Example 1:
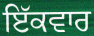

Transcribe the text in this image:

ਇੱਕਵਾਰ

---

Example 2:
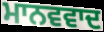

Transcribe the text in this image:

ਮਾਨਵਵਾਦ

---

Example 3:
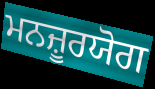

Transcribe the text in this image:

ਮਨਜ਼ੂਰਯੋਗ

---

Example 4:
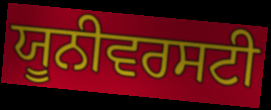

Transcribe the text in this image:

ਯੂਨੀਵਰਸਟੀ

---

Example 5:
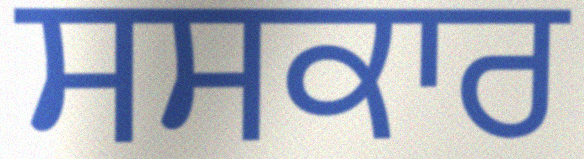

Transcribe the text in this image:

ਸਸਕਾਰ